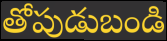
తోపుడుబండి